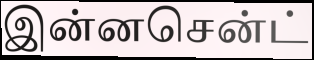
இன்னசென்ட்